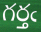
గర్తఁ